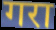
गरा